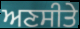
ਅਣਸੀਤੇ